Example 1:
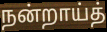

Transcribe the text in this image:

நன்றாய்த்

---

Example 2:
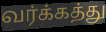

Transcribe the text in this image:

வர்க்கத்து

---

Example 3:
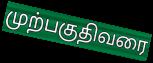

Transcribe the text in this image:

முற்பகுதிவரை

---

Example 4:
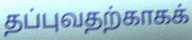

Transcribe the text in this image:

தப்புவதற்காகக்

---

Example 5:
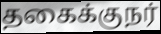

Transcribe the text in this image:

தகைக்குநர்